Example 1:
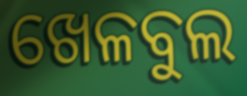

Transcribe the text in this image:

ଖେଳବୁଲ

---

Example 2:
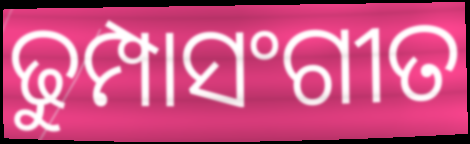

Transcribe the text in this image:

ଢୁମ୍ପାସଂଗୀତ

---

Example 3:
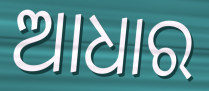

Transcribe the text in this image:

ଆଧାର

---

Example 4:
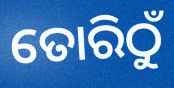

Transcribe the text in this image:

ତୋରିଠୁଁ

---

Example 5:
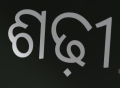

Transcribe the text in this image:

ଶଢ଼ୀ